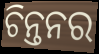
ଚିନ୍ତନର